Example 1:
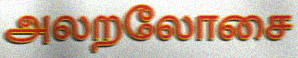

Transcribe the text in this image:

அலறலோசை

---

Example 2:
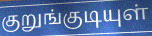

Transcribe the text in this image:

குறுங்குடியுள்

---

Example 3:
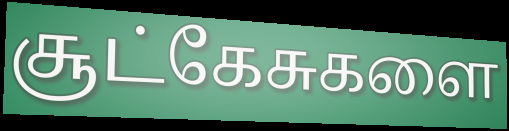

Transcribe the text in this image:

சூட்கேசுகளை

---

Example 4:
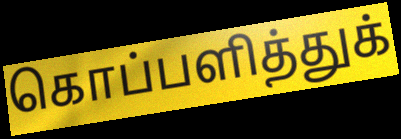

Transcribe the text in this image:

கொப்பளித்துக்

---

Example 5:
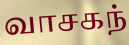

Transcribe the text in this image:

வாசகந்